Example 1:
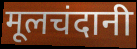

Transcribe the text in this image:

मूलचंदानी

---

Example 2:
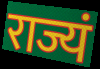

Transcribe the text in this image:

राज्यं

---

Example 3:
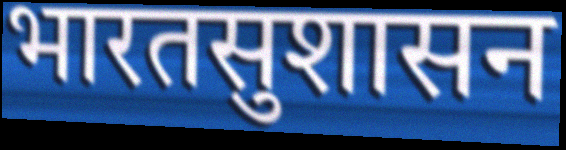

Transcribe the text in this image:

भारतसुशासन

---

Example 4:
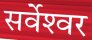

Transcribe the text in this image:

सर्वेश्‍वर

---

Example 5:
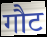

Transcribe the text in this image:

गौट